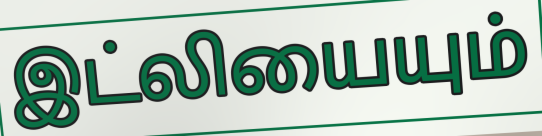
இட்லியையும்